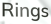
Rings